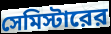
সেমিস্টারের